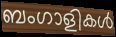
ബംഗാളികൾ